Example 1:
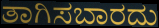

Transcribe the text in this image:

ತಾಗಿಸಬಾರದು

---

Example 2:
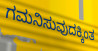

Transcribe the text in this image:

ಗಮನಿಸುವುದಕ್ಕಿಂತ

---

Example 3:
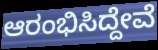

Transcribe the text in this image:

ಆರಂಭಿಸಿದ್ದೇವೆ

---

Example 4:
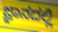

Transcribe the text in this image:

ಜ್ಞಾನದಲ್ಲಿ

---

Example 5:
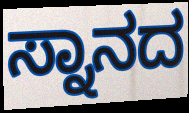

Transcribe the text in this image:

ಸ್ನಾನದ